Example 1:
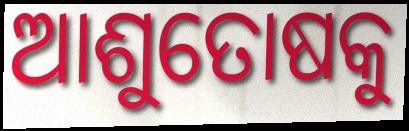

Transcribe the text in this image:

ଆଶୁତୋଷକୁ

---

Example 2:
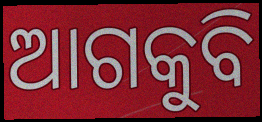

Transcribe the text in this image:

ଆଗକୁବି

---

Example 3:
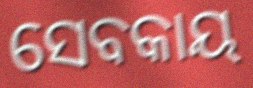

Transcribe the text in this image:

ସେବକାୟ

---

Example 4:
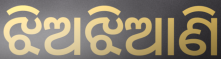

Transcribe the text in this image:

ଝିଅଝିଆଣି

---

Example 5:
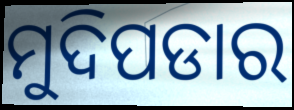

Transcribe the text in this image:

ମୁଦିପଡାର